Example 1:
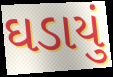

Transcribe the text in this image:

ઘડાયું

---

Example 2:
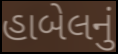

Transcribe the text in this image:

હાબેલનું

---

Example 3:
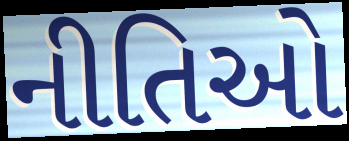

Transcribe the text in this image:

નીતિઓ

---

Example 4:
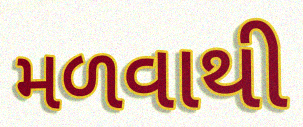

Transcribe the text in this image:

મળવાથી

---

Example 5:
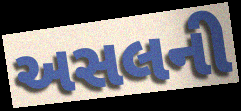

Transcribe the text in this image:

અસલની